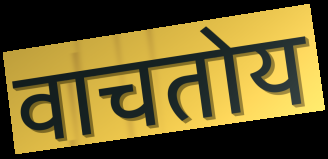
वाचतोय